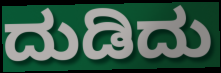
ದುಡಿದು